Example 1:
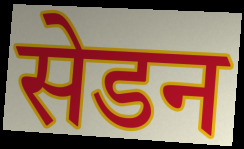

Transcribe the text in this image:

सेडन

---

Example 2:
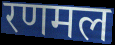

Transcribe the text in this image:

रणमल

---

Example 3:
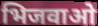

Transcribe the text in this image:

भिजवाओ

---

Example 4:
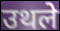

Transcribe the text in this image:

उथले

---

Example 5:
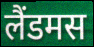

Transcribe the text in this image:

लैंडमस